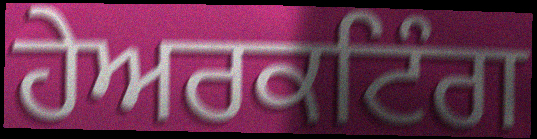
ਹੇਅਰਕਟਿੰਗ